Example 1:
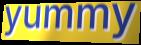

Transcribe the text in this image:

yummy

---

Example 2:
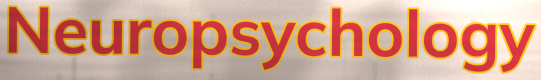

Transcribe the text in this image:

Neuropsychology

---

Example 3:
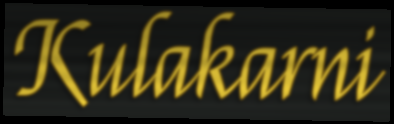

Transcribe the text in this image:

Kulakarni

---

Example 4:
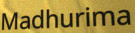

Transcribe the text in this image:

Madhurima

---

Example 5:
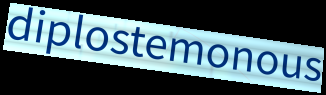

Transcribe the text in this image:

diplostemonous